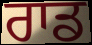
ਰਾਡ